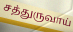
சத்துருவாய்